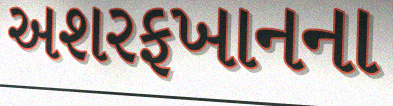
અશરફખાનના